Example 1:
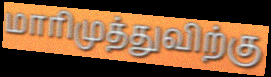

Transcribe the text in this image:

மாரிமுத்துவிற்கு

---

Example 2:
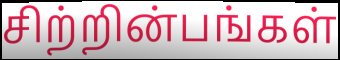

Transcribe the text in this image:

சிற்றின்பங்கள்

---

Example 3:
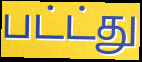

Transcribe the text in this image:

பட்ட்து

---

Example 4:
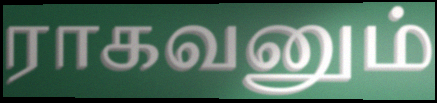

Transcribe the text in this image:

ராகவனும்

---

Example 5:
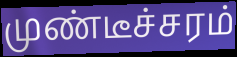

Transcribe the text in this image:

முண்டீச்சரம்